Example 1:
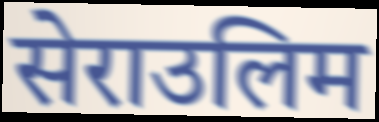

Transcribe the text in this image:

सेराउलिम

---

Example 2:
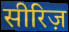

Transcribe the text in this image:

सीरिज़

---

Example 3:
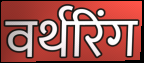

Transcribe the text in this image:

वर्थरिंग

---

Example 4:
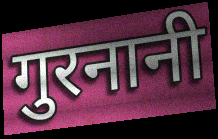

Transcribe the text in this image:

गुरनानी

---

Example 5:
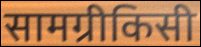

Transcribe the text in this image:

सामग्रीकिसी